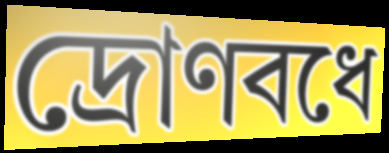
দ্রোণবধে